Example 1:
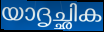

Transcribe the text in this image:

യാദൃച്ഛിക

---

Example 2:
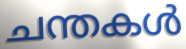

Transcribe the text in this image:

ചന്തകൾ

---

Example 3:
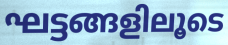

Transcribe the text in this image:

ഘട്ടങ്ങളിലൂടെ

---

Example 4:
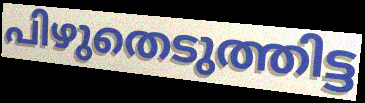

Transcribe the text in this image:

പിഴുതെടുത്തിട്ട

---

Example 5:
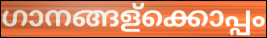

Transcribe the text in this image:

ഗാനങ്ങള്ക്കൊപ്പം